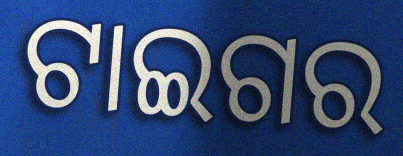
ଟାଇଗର